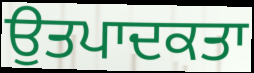
ਉਤਪਾਦਕਤਾ